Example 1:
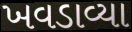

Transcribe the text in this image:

ખવડાવ્યા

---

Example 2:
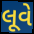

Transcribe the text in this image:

લૂવે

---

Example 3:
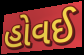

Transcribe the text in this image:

હોવઈ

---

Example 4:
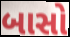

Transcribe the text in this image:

બાસો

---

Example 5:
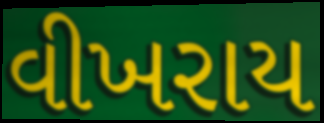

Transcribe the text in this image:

વીખરાય